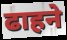
ढाहने